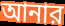
আনার